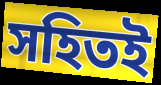
সহিতই